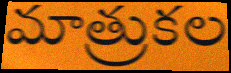
మాత్రుకల